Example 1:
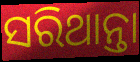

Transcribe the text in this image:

ସରିଥାନ୍ତା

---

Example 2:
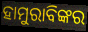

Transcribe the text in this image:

ହାମୁରାବିଙ୍କର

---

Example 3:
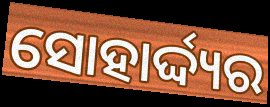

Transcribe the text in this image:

ସୋହାର୍ଦ୍ଦ୍ୟର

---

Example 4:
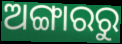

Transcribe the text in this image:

ଅଙ୍ଗାରରୁ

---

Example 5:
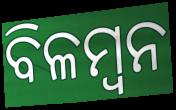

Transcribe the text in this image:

ବିଳମ୍ବନ